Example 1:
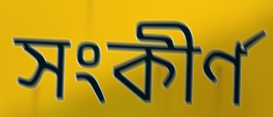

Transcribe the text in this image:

সংকীৰ্ণ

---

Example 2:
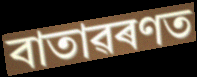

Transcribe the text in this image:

বাতাৱৰণত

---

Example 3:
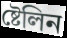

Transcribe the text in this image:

ষ্টেলিন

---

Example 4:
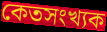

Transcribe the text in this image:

কেতসংখ্যক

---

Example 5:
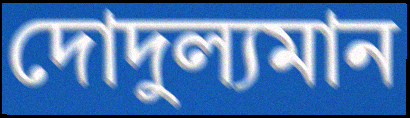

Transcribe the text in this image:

দোদুল্যমান